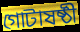
গোটাষষ্ঠী